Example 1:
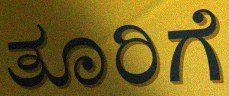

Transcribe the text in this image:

ತೂರಿಗೆ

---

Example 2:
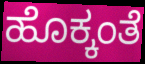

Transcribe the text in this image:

ಹೊಕ್ಕಂತೆ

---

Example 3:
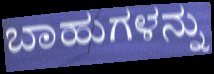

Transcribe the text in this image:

ಬಾಹುಗಳನ್ನು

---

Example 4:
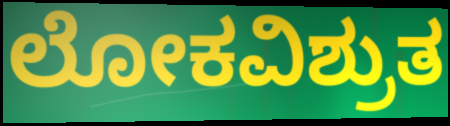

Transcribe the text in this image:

ಲೋಕವಿಶ್ರುತ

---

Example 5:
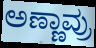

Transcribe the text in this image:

ಅಣ್ಣಾವ್ರು